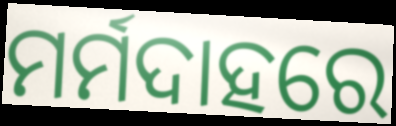
ମର୍ମଦାହରେ